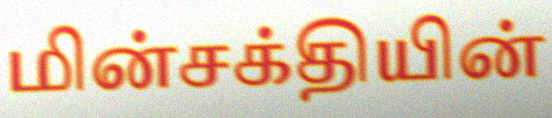
மின்சக்தியின்